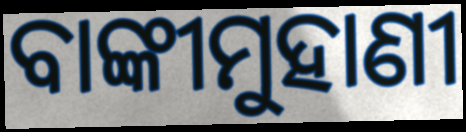
ବାଙ୍କୀମୁହାଣୀ